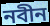
নবীন